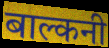
बाल्कनी